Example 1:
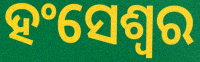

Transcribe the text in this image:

ହଂସେଶ୍ୱର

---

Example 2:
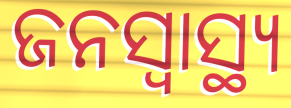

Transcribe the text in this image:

ଜନସ୍ୱାସ୍ଥ୍ୟ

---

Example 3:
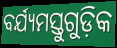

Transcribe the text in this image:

ବର୍ଯ୍ୟମସ୍ତୁଗୁଡ଼ିକ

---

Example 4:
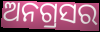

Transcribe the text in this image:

ଅନଗ୍ରସର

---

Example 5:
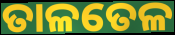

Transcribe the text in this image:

ତାଳତେଳ